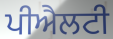
ਪੀਐਲਟੀ